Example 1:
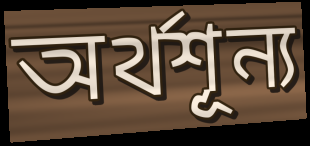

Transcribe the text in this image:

অর্থশূন্য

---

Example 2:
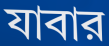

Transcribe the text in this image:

যাবার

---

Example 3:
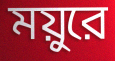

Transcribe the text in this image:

ময়ুরে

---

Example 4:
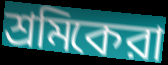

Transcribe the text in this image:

শ্রমিকেরা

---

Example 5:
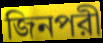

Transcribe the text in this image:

জিনপরী